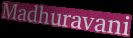
Madhuravani